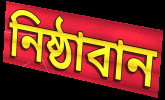
নিষ্ঠাবান